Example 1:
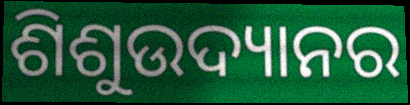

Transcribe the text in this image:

ଶିଶୁଉଦ୍ୟାନର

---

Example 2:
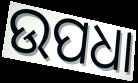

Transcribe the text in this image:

ଉପଧା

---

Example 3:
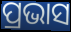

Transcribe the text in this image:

ପ୍ରଭାସ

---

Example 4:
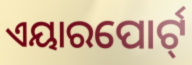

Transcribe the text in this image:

ଏୟାରପୋର୍ଟ୍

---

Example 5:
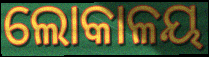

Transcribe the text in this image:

ଲୋକାଳୟ